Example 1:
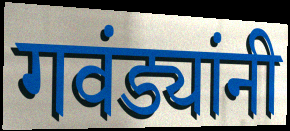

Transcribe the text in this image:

गवंड्यांनी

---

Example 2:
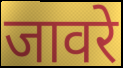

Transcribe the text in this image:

जावरे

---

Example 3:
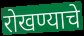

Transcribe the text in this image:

रोखण्याचे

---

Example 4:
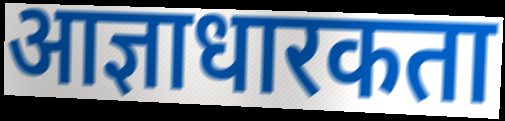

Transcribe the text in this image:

आज्ञाधारकता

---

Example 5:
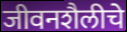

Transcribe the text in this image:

जीवनशैलीचे